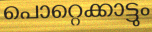
പൊറ്റെക്കാട്ടും